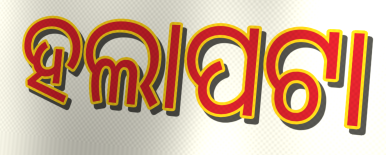
ହଲାପଟା